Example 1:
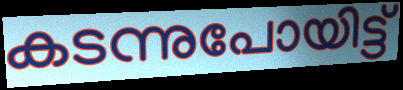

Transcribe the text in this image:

കടന്നുപോയിട്ട്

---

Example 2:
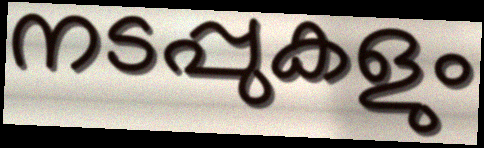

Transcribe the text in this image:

നടപ്പുകളും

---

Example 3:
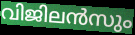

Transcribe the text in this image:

വിജിലൻസും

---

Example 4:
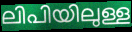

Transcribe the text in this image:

ലിപിയിലുള്ള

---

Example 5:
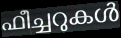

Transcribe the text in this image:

ഫീച്ചറുകൾ